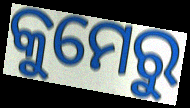
କୁମେରୁ